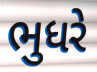
ભુધરે